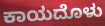
ಕಾಯದೊಳು